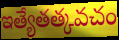
ఇత్యేతత్కవచం